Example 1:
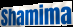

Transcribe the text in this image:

Shamima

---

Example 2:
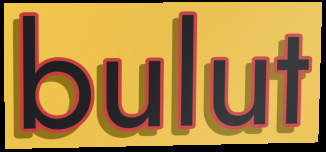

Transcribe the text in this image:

bulut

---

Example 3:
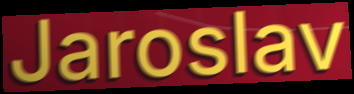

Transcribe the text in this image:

Jaroslav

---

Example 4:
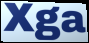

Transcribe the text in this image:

Xga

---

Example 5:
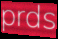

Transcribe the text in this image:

prds